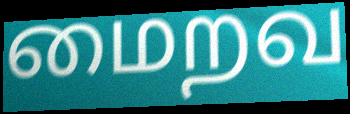
மைறவ